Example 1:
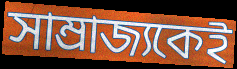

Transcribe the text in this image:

সাম্রাজ্যকেই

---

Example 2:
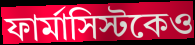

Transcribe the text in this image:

ফার্মাসিস্টকেও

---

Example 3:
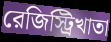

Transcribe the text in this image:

রেজিস্ট্রিখাতা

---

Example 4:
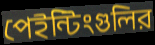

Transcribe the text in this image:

পেইন্টিংগুলির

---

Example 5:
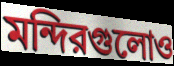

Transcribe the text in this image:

মন্দিরগুলোও